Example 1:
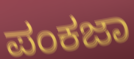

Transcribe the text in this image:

ಪಂಕಜಾ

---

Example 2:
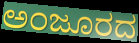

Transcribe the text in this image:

ಅಂಜೂರದ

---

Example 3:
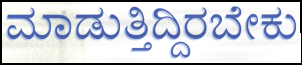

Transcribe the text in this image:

ಮಾಡುತ್ತಿದ್ದಿರಬೇಕು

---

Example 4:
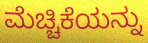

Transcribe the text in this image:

ಮೆಚ್ಚಿಕೆಯನ್ನು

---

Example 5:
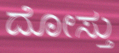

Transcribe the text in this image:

ದೋಸ್ತು